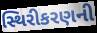
સ્થિરીકરણની